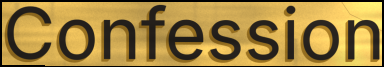
Confession